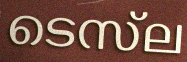
ടെസ്‌ല